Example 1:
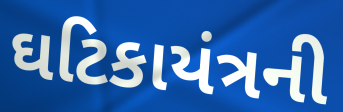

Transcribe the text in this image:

ઘટિકાયંત્રની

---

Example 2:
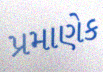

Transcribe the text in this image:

પ્રમાણેક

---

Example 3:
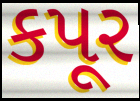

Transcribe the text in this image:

કપૂર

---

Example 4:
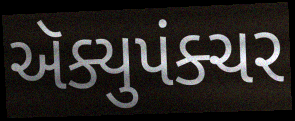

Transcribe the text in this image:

ઍક્યુપંક્ચર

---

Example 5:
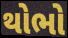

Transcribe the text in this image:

થોભો